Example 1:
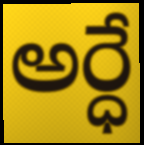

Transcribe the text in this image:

అర్ధే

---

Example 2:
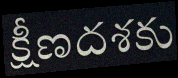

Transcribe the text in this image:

క్షీణదశకు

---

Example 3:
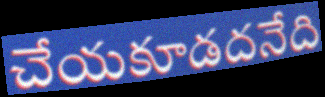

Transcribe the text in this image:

చేయకూడదనేది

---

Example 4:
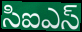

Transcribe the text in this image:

సిఐఎస్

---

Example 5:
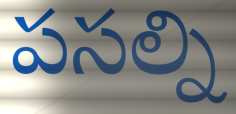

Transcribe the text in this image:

పసల్ని